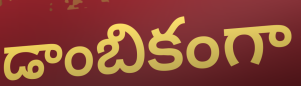
డాంబికంగా